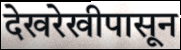
देखरेखीपासून